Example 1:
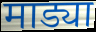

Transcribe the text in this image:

माड्या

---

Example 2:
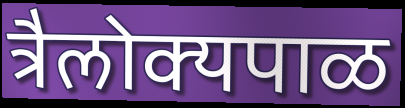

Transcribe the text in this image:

त्रैलोक्यपाळ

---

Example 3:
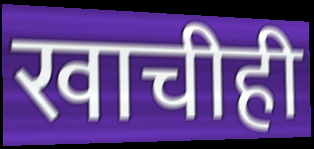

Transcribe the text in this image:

खाचीही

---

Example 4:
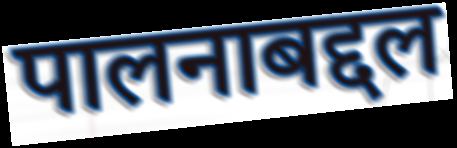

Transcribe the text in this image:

पालनाबद्दल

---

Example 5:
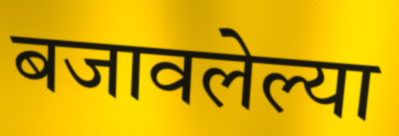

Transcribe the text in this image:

बजावलेल्या